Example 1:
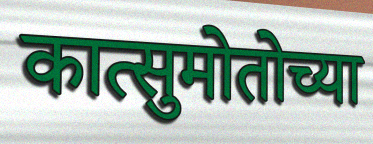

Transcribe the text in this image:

कात्सुमोतोच्या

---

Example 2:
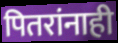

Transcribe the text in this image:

पितरांनाही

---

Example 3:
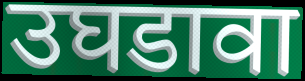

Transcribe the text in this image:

उघडावा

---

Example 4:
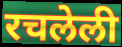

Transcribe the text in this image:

रचलेली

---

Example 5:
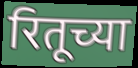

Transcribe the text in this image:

रितूच्या